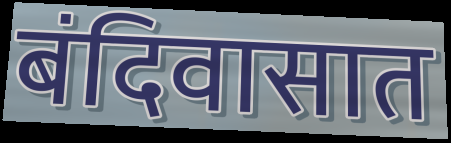
बंदिवासात